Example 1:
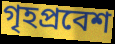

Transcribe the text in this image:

গৃহপ্রবেশ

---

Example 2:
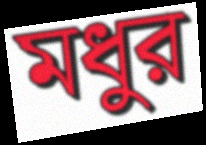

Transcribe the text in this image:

মধুর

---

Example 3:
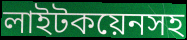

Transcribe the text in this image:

লাইটকয়েনসহ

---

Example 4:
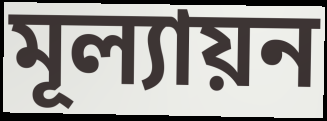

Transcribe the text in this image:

মূল্যায়ন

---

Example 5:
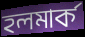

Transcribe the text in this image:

হলমার্ক